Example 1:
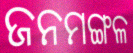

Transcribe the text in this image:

ଜନମଙ୍ଗଳ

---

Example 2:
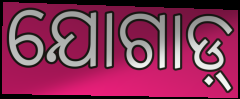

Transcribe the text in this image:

ଯୋଗାଡ଼୍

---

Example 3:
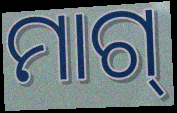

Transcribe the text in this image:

ମାଗ୍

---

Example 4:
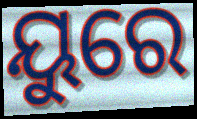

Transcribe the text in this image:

ୟୁରେ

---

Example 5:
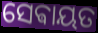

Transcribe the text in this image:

ସେଵାୟତ